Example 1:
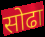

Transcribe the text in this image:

सोढा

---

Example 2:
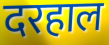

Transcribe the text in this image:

दरहाल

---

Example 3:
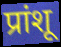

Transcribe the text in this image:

प्रांशू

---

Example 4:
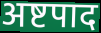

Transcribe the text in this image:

अष्टपाद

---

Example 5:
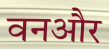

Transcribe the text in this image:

वनऔर